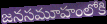
జనసమూహంలోకి